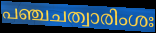
പഞ്ചചത്വാരിംശഃ